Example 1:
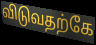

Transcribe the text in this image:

விடுவதற்கே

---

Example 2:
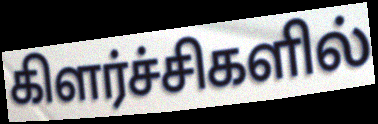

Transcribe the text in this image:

கிளர்ச்சிகளில்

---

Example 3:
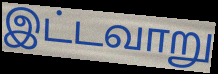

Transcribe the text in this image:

இட்டவாறு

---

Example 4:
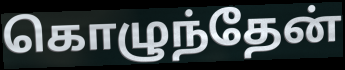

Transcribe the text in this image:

கொழுந்தேன்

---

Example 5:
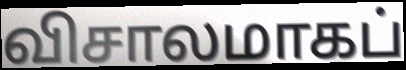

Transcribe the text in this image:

விசாலமாகப்